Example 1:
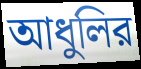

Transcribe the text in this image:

আধুলির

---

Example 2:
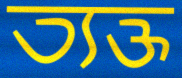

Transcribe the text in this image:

ত্যক্ত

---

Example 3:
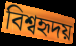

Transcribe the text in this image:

বিশ্বহৃদয়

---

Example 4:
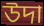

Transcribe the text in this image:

উদা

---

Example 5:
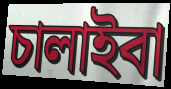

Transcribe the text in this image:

চালাইবা